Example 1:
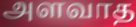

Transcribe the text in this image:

அளவாத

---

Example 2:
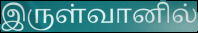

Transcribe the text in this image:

இருள்வானில்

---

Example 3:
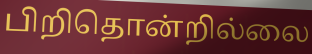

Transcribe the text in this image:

பிறிதொன்றில்லை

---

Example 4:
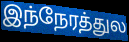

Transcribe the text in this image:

இந்நேரத்துல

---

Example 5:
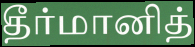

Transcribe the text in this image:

தீர்மானித்